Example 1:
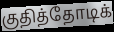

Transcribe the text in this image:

குதித்தோடிக்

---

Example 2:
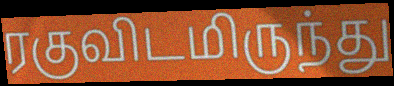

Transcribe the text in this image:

ரகுவிடமிருந்து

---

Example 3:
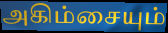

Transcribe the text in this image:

அகிம்சையும்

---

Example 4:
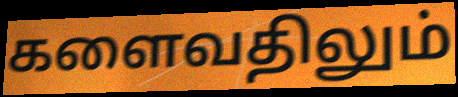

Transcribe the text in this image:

களைவதிலும்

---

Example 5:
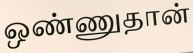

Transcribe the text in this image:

ஒண்ணுதான்